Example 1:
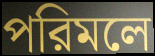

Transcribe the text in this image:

পরিমলে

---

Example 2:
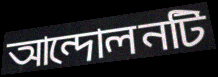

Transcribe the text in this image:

আন্দোলনটি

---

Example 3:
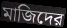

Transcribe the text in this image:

মাজিদের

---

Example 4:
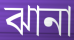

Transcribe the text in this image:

ঝানা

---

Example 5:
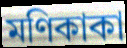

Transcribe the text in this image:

মণিকাকা